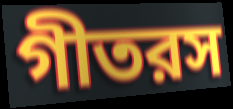
গীতরস